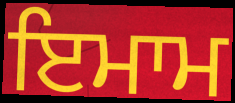
ਇਮਾਮ